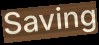
Saving